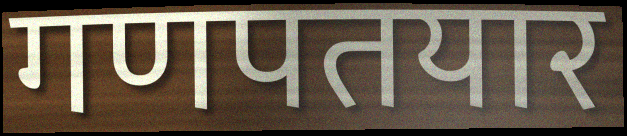
गणपतयार